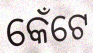
କେଁଟେ